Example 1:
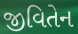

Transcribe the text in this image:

જીવિતેન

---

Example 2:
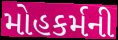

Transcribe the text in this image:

મોહકર્મની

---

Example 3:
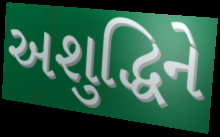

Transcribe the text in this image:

અશુદ્ધિને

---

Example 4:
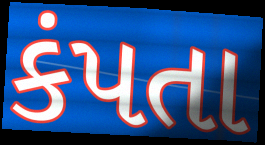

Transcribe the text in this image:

કંપતા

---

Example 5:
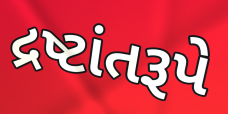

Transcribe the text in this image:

દ્રષ્ટાંતરૂપે